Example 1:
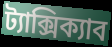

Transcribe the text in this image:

ট্যাক্সিক্যাব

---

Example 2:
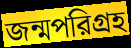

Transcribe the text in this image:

জন্মপরিগ্রহ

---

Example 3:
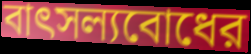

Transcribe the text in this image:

বাৎসল্যবোধের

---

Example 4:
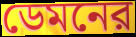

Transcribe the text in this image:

ডেমনের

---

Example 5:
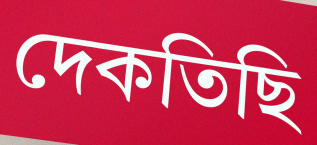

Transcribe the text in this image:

দেকতিছি